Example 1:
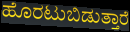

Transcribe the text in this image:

ಹೊರಟುಬಿಡುತ್ತಾರೆ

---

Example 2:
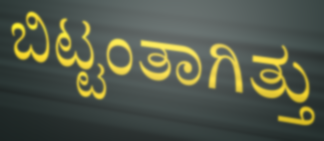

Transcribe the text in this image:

ಬಿಟ್ಟಂತಾಗಿತ್ತು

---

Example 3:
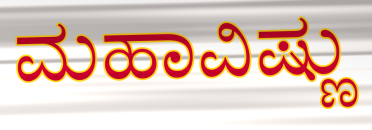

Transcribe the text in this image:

ಮಹಾವಿಷ್ಣು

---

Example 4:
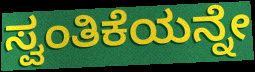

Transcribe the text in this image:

ಸ್ವಂತಿಕೆಯನ್ನೇ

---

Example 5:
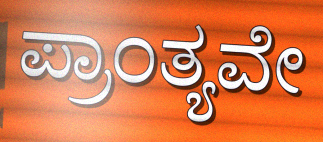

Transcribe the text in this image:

ಪ್ರಾಂತ್ಯವೇ